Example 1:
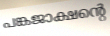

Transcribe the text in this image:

പങ്കജാക്ഷന്റെ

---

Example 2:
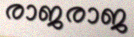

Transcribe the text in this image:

രാജരാജ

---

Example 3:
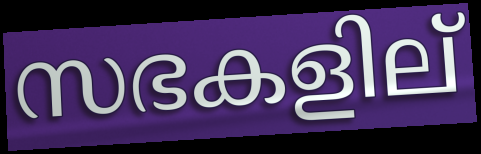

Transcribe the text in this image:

സഭകളില്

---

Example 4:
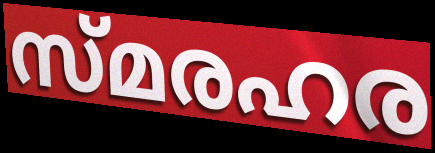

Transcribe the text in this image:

സ്മരഹര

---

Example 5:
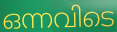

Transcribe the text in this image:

ഒന്നവിടെ